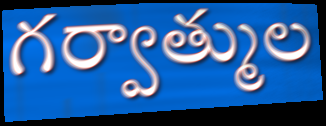
గర్వాత్ముల